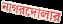
নাগরদোলার